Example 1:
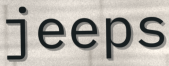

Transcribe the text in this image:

jeeps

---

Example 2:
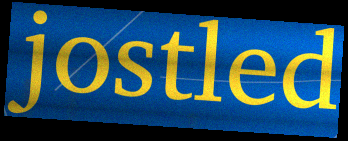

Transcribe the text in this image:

jostled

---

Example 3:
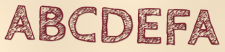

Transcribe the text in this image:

ABCDEFA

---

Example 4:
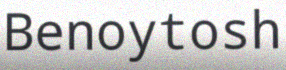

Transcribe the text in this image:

Benoytosh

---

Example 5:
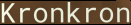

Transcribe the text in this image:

Kronkron